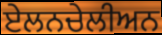
ਏਲਨਚੇਲੀਅਨ